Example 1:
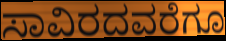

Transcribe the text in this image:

ಸಾವಿರದವರೆಗೂ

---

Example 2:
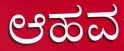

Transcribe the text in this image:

ಆಹವ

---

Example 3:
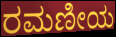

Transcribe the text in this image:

ರಮಣೀಯ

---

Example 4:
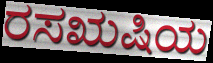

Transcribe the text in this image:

ರಸಋಷಿಯ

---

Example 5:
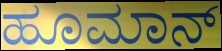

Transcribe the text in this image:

ಹೂಮಾನ್